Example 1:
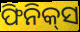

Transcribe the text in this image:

ଫିନିକ୍‌ସ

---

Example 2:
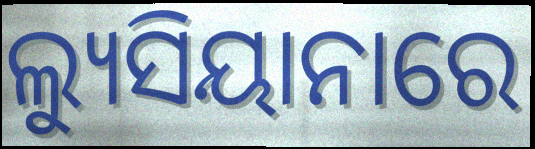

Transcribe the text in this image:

ଲ୍ୟୁସିୟାନାରେ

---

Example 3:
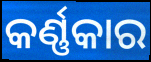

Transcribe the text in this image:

କର୍ଣ୍ଣକାର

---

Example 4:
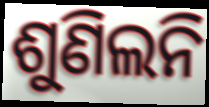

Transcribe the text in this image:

ଶୁଣିଲନି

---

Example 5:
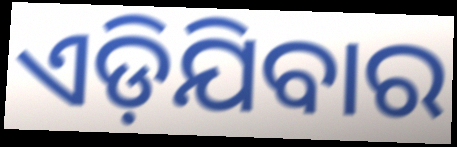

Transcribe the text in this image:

ଏଡ଼ିଯିବାର